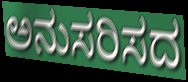
ಅನುಸರಿಸದ